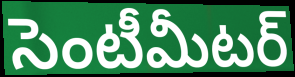
సెంటీమీటర్